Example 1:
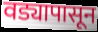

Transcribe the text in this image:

वड्यापासून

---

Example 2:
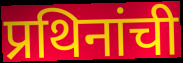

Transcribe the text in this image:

प्रथिनांची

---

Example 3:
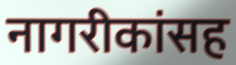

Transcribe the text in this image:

नागरीकांसह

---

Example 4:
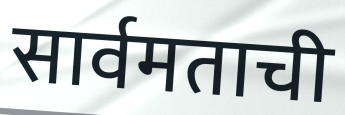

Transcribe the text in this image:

सार्वमताची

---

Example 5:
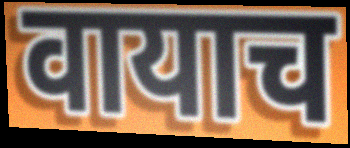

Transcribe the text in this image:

वायाच